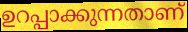
ഉറപ്പാക്കുന്നതാണ്